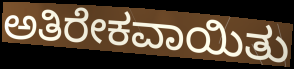
ಅತಿರೇಕವಾಯಿತು